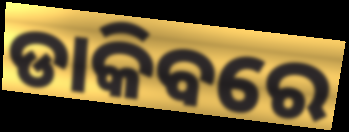
ଡାକିବରେ